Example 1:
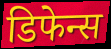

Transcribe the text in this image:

डिफेन्स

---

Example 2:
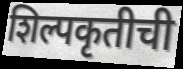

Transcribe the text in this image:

शिल्पकृतीची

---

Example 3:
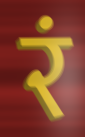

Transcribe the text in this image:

रं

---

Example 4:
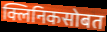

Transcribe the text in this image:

क्लिनिकसोबत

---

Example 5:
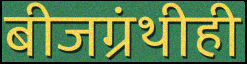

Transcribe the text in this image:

बीजग्रंथीही